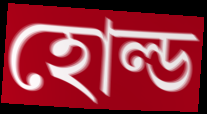
হোল্ড